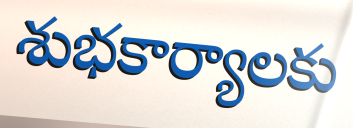
శుభకార్యాలకు